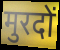
मुरदों